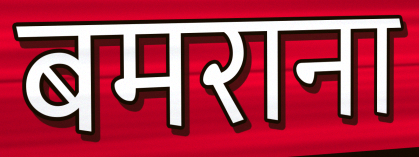
बमराना